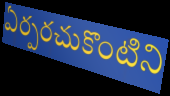
ఏర్పరచుకొంటిని